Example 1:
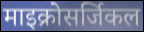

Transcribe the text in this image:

माइक्रोसर्जिकल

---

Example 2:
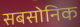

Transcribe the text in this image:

सबसोनिक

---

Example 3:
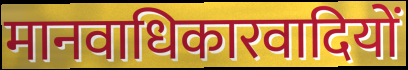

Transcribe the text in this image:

मानवाधिकारवादियों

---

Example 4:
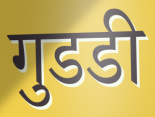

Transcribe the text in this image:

गुडडी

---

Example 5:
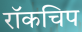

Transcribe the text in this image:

रॉकचिप